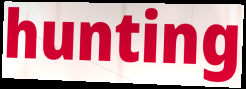
hunting